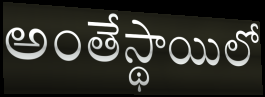
అంతేస్థాయిలో